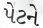
પેટને